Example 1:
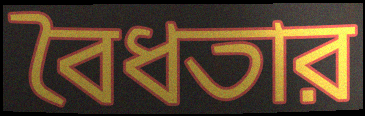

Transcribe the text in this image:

বৈধতার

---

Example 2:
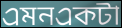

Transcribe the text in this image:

এমনএকটা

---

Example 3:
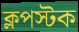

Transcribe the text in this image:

ক্লপস্টক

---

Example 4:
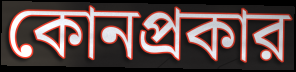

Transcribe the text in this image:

কোনপ্রকার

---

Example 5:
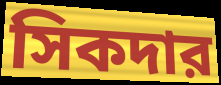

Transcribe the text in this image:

সিকদার